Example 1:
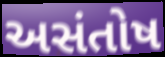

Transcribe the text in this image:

અસંતોષ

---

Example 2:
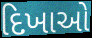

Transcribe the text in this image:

દિખાઓ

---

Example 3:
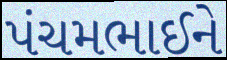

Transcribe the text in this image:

પંચમભાઈને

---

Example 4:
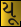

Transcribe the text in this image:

યૂ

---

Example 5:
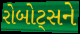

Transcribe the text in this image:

રોબોટ્સને